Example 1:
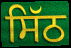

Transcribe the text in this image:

ਸਿੱਠ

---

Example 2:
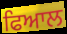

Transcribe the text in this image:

ਫਿਆਲ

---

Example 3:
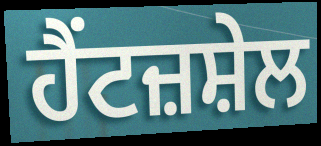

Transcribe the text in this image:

ਹੈਂਟਜ਼ਸ਼ੇਲ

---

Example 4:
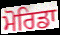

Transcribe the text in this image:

ਮੋਰਿਡਾ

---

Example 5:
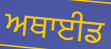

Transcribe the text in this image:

ਅਥਾਈਡ